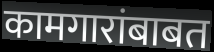
कामगारांबाबत